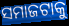
ସମାଜଟାକୁ